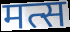
मत्स